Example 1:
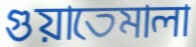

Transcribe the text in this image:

গুয়াতেমালা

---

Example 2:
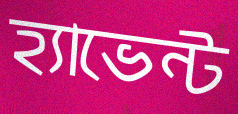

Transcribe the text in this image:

হ্যাভেন্ট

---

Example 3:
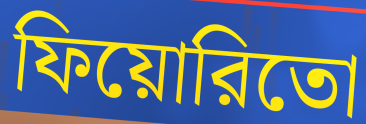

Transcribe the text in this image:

ফিয়োরিতো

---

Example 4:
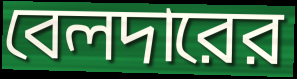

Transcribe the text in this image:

বেলদারের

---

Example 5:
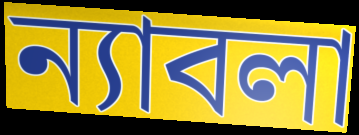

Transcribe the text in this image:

ন্যাবলা